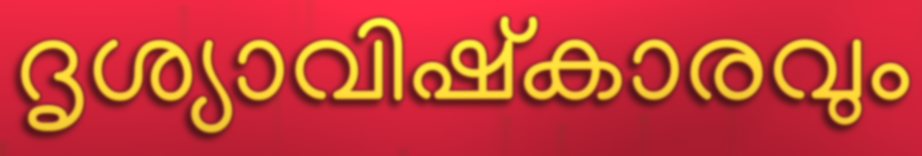
ദൃശ്യാവിഷ്കാരവും